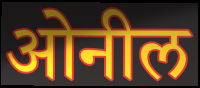
ओनील